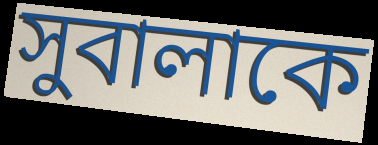
সুবালাকে